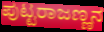
ಪುಟ್ಟರಾಜಣ್ಣನ